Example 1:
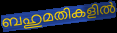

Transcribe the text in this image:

ബഹുമതികളിൽ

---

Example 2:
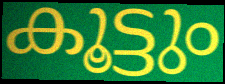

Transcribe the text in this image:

കൂട്ടും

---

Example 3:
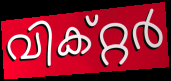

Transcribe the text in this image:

വിക്റ്റർ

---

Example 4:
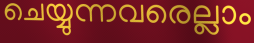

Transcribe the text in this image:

ചെയ്യുന്നവരെല്ലാം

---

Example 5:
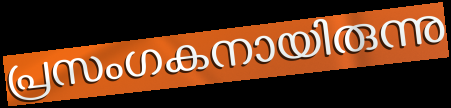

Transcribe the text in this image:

പ്രസംഗകനായിരുന്നു